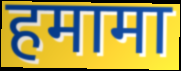
हमामा